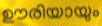
ഊരിയായും